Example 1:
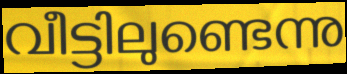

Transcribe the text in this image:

വീട്ടിലുണ്ടെന്നു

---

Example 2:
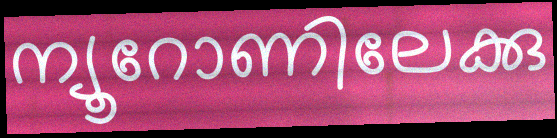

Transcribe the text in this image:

ന്യൂറോണിലേക്കു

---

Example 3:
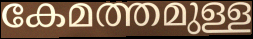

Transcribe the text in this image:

കേമത്തമുള്ള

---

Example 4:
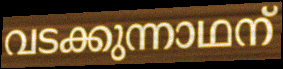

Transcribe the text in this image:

വടക്കുന്നാഥന്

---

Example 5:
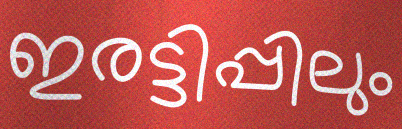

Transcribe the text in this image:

ഇരട്ടിപ്പിലും